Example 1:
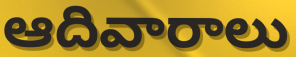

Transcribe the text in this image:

ఆదివారాలు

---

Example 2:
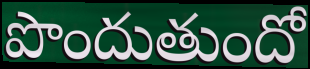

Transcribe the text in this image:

పొందుతుందో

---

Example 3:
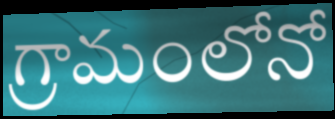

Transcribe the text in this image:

గ్రామంలోనో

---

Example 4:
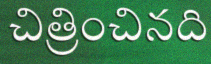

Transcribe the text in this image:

చిత్రించినది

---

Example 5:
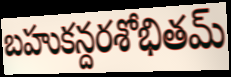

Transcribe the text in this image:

బహుకన్దరశోభితమ్